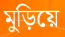
মুড়িয়ে